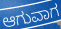
ಆಗುವಾಗ